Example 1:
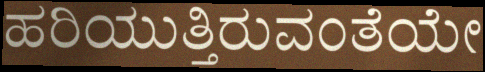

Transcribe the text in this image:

ಹರಿಯುತ್ತಿರುವಂತೆಯೇ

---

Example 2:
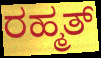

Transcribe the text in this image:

ರಹ್ಮತ್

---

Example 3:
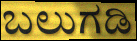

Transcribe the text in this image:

ಬಲುಗಡಿ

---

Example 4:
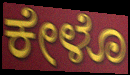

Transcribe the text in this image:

ಕೇಳೊ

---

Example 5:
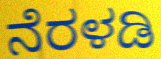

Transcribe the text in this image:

ನೆರಳಡಿ